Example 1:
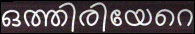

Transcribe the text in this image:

ഒത്തിരിയേറെ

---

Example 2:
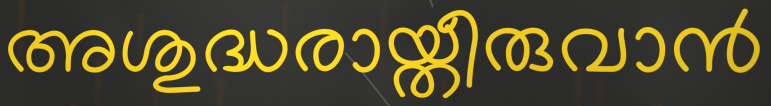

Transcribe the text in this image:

അശുദ്ധരായ്തീരുവാൻ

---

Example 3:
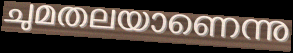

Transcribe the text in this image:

ചുമതലയാണെന്നു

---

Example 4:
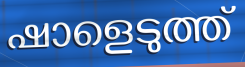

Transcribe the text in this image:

ഷാളെടുത്ത്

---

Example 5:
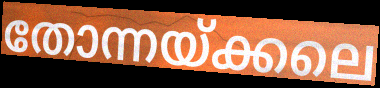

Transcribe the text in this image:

തോന്നയ്ക്കലെ